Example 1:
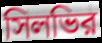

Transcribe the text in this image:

সিলভির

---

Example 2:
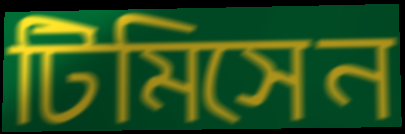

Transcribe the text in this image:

টিমিসেন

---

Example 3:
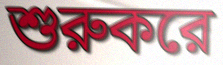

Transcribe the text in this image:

শুরুকরে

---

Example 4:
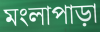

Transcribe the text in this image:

মংলাপাড়া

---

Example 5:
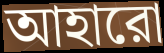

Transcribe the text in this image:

আহারো